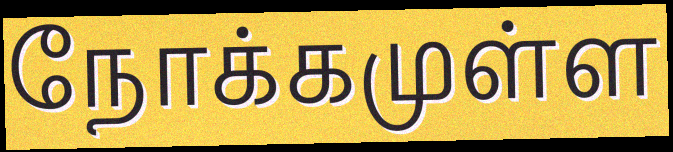
நோக்கமுள்ள